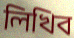
লিখিব